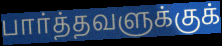
பார்த்தவளுக்குக்